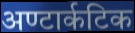
अण्टार्कटिक